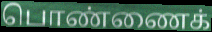
பொண்ணைக்